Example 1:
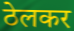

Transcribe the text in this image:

ठेलकर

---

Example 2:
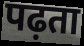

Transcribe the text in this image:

पढ़ता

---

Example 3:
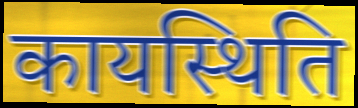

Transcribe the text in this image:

कायस्थिति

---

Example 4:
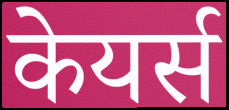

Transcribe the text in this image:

केयर्स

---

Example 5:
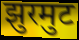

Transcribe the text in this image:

झुरमुट